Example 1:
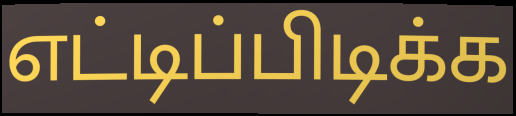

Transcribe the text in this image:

எட்டிப்பிடிக்க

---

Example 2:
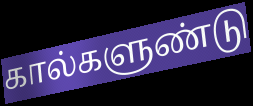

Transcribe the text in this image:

கால்களுண்டு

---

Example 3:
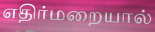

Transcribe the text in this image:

எதிர்மறையால்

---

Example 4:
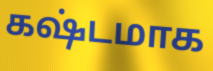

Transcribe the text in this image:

கஷ்டமாக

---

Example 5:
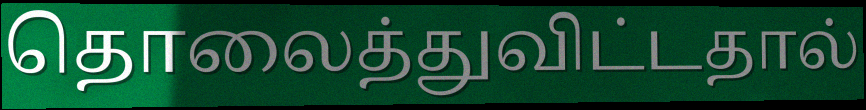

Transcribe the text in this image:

தொலைத்துவிட்டதால்